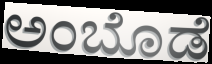
ಅಂಬೊಡೆ